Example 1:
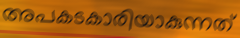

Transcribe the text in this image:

അപകടകാരിയാകുന്നത്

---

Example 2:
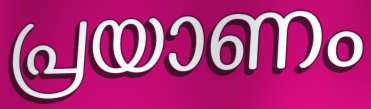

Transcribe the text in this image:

പ്രയാണം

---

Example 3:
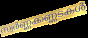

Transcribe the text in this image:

സ്വർണ്ണക്കണ്ണടകൾ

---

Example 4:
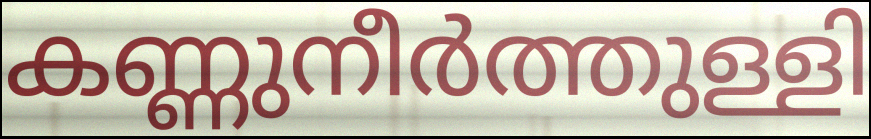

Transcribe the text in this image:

കണ്ണുനീർത്തുള്ളി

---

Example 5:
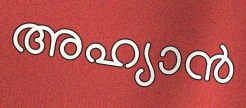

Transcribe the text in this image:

അഹ്യാൻ